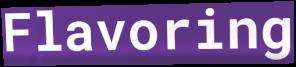
Flavoring